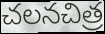
చలనచిత్ర